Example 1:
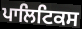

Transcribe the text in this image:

ਪਾਲਿਟਿਕਸ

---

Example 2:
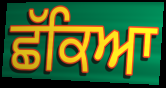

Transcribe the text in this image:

ਛੱਕਿਆ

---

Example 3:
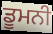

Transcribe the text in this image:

ਡੂਮਨੀ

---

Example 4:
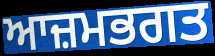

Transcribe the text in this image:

ਆਜ਼ਮਭਗਤ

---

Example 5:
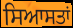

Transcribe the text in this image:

ਸਿਆਸਤਾਂ